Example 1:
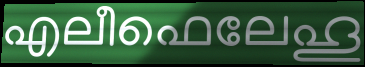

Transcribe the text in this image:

എലീഫെലേഹൂ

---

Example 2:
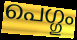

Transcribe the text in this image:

പെഗ്ഗും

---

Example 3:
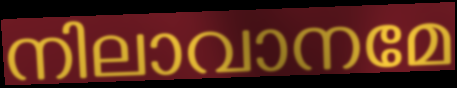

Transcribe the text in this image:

നിലാവാനമേ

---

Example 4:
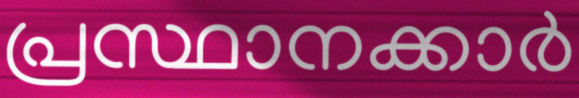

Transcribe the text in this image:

പ്രസ്ഥാനക്കാർ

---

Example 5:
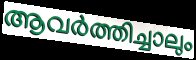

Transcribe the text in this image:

ആവർത്തിച്ചാലും